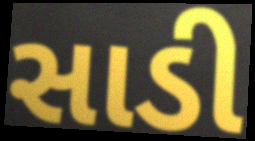
સાડી